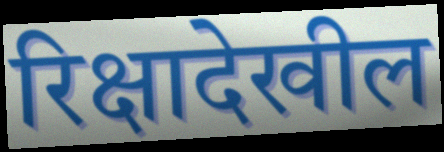
रिक्षादेखील